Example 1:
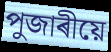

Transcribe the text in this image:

পুজাৰীয়ে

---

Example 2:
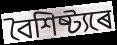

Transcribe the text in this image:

বৈশিষ্ট্যৰে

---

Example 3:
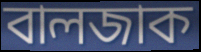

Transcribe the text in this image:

বালজাক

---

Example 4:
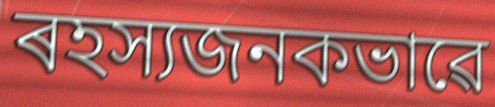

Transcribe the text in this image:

ৰহস্যজনকভাৱে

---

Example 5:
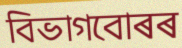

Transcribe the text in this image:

বিভাগবোৰৰ